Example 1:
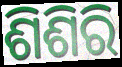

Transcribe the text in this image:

ଶିଶିରି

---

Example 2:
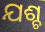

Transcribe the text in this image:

ଯଶ୍ଚ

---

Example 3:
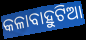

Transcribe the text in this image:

କଳାବାହୁଟିଆ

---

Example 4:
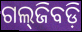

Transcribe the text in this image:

ଗଲ୍‌ଜିବଡ଼ି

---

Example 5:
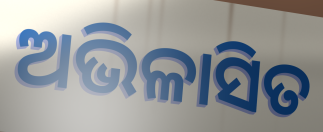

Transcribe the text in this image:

ଅଭିଳାସିତ